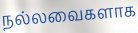
நல்லவைகளாக